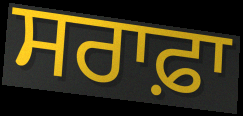
ਸਰਾਫ਼ਾ